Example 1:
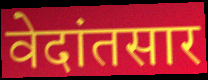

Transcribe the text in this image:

वेदांतसार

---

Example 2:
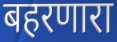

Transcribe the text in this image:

बहरणारा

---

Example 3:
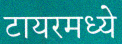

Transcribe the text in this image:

टायरमध्ये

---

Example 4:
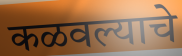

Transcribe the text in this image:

कळवल्याचे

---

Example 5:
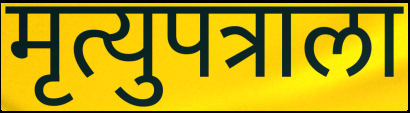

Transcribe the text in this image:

मृत्युपत्राला